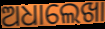
ଅଧାଲେଖା